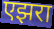
एझरा